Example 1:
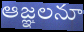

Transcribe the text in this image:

ఆజ్ఞలనూ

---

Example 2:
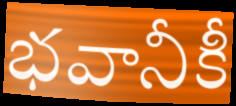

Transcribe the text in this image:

భవానీకీ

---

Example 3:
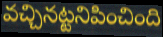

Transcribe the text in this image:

వచ్చినట్టనిపించింది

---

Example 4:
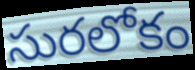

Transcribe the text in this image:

సురలోకం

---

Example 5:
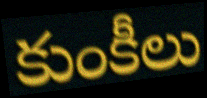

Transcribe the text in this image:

కుంకీలు